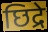
छिद्रे